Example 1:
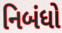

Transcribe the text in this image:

નિબંધો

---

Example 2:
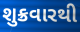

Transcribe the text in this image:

શુક્રવારથી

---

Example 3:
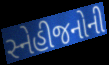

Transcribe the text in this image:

સ્નેહીજનોની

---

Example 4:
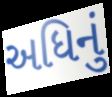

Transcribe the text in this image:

અધિનું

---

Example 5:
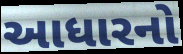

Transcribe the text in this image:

આધારનો